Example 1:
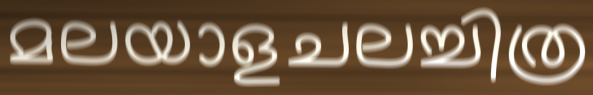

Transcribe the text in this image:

മലയാളചലച്ചിത്ര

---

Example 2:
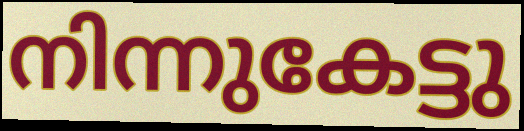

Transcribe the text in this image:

നിന്നുകേട്ടു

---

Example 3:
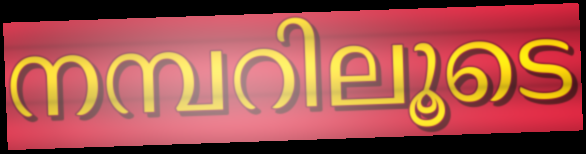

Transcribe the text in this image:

നമ്പറിലൂടെ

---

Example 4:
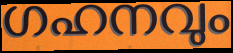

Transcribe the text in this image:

ഗഹനവും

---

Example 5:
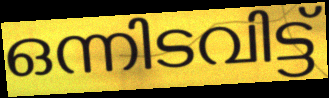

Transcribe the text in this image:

ഒന്നിടവിട്ട്